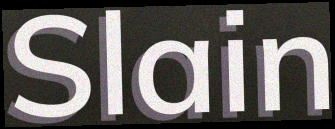
Slain